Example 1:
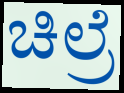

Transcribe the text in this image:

ಚಿಲ್ರೆ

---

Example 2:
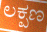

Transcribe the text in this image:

ಲಕ್ಪಣ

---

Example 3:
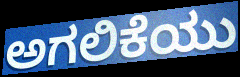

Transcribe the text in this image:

ಅಗಲಿಕೆಯು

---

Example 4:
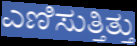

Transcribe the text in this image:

ಎಣಿಸುತ್ತಿತ್ತು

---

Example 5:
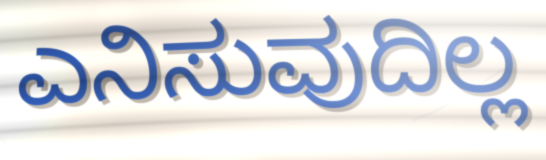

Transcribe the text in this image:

ಎನಿಸುವುದಿಲ್ಲ